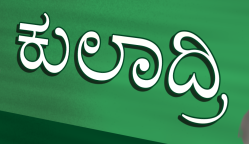
ಕುಲಾದ್ರಿ